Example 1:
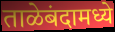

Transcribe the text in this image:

ताळेबंदामध्ये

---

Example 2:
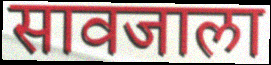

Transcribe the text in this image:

सावजाला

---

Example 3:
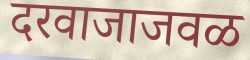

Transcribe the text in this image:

दरवाजाजवळ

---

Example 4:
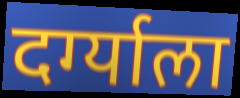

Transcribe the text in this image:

दर्ग्याला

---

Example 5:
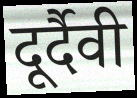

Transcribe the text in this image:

दूर्दैवी